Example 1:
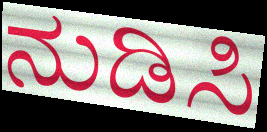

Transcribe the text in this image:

ನುಡಿಸಿ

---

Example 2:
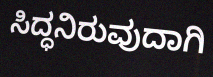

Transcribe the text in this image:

ಸಿದ್ಧನಿರುವುದಾಗಿ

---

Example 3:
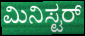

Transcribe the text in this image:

ಮಿನಿಸ್ಟರ್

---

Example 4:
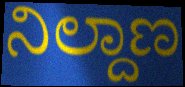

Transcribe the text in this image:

ನಿಲ್ದಾಣ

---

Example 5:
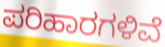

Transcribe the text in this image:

ಪರಿಹಾರಗಳಿವೆ